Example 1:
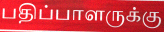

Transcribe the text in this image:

பதிப்பாளருக்கு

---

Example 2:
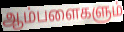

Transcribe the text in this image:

ஆம்பளைகளும்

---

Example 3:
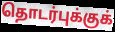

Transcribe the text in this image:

தொடர்புக்குக்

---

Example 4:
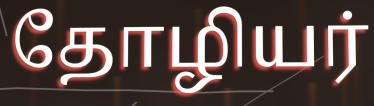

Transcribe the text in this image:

தோழியர்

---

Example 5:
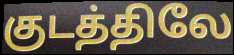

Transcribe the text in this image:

குடத்திலே